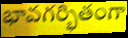
భావగర్భితంగా